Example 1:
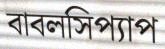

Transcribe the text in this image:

বাবলসিপ্যাপ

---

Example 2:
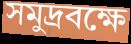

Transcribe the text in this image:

সমুদ্রবক্ষে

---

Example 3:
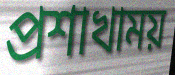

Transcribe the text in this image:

প্রশাখাময়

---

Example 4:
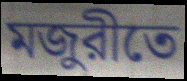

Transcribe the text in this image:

মজুরীতে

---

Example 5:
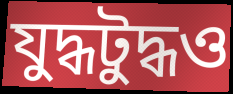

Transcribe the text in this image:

যুদ্ধটুদ্ধও